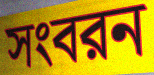
সংবরন